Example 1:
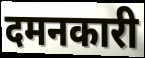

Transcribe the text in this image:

दमनकारी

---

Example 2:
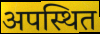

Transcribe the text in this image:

अपस्थित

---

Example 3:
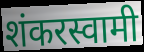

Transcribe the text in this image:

शंकरस्वामी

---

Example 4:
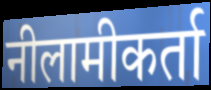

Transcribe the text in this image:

नीलामीकर्ता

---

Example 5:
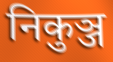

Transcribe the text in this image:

निकुञ्ज